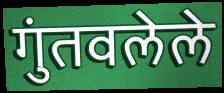
गुंतवलेले